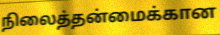
நிலைத்தன்மைக்கான